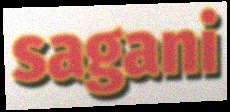
sagani